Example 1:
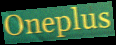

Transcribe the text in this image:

Oneplus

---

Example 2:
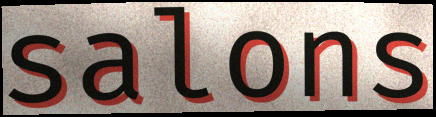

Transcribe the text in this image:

salons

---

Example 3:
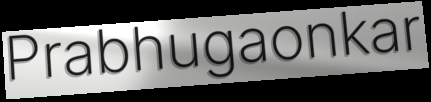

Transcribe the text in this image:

Prabhugaonkar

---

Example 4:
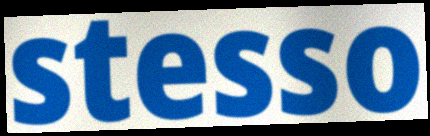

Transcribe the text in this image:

stesso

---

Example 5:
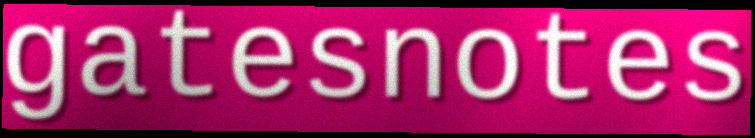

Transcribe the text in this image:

gatesnotes